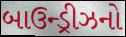
બાઉન્ડ્રીઝનો